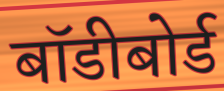
बॉडीबोर्ड